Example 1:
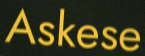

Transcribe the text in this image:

Askese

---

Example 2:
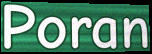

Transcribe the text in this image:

Poran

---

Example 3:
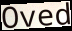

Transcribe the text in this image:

Oved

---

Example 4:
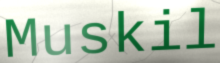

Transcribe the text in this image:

Muskil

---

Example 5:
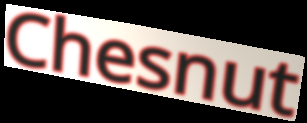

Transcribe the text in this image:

Chesnut